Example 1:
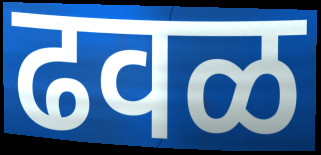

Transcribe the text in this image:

ढवळ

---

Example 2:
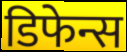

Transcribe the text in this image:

डिफेन्स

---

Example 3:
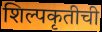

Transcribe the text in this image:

शिल्पकृतीची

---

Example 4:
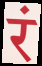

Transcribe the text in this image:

रं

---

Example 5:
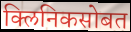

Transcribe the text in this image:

क्लिनिकसोबत